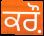
ਕਰ਼ੌ